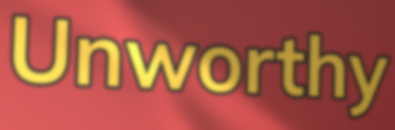
Unworthy